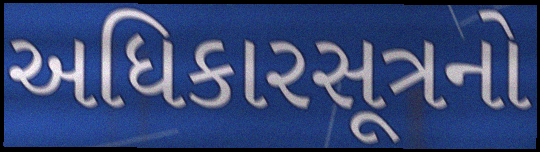
અધિકારસૂત્રનો